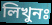
লিখুনঃ